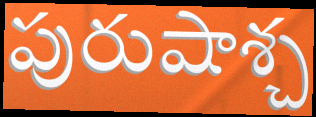
పురుషాశ్చ